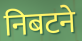
निबटने